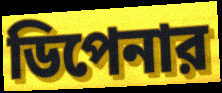
ডিপেনার